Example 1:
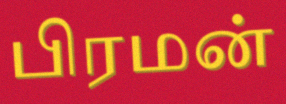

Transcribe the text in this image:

பிரமன்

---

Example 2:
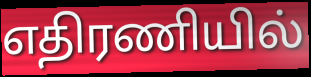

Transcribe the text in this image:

எதிரணியில்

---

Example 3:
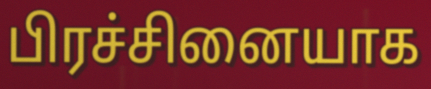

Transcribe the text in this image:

பிரச்சினையாக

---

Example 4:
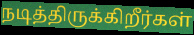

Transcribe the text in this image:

நடித்திருக்கிறீர்கள்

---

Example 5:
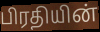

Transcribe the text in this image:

பிரதியின்